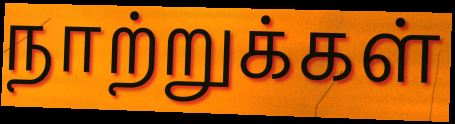
நாற்றுக்கள்